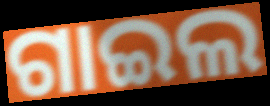
ଗାଇଲ